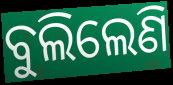
ବୁଲିଲେଣି